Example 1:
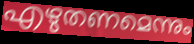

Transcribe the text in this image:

എഴുതണമെന്നും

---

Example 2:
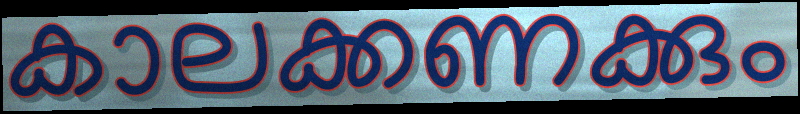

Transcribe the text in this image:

കാലക്കണക്കും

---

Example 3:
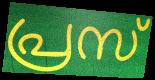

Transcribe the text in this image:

പ്രസ്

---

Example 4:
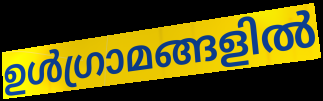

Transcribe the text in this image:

ഉൾഗ്രാമങ്ങളിൽ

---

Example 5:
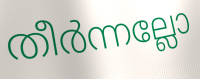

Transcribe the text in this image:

തീർന്നല്ലോ